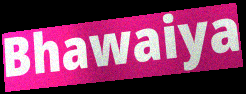
Bhawaiya